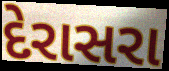
દેરાસરા